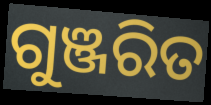
ଗୁଞ୍ଜରିତ